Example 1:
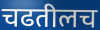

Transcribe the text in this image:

चढतीलच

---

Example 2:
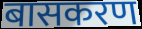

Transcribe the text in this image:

बासकरण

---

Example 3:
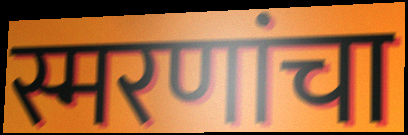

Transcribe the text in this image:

स्मरणांचा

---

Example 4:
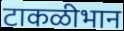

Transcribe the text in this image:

टाकळीभान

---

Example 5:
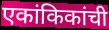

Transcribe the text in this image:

एकांकिकांची